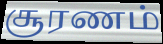
சூரணம்